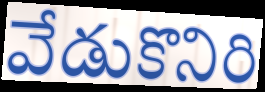
వేడుకొనిరి